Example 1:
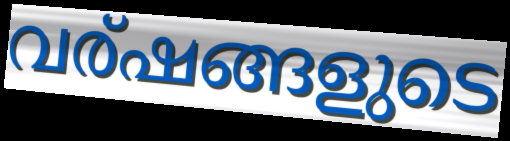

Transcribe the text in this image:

വര്ഷങ്ങളുടെ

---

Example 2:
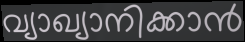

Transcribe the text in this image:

വ്യാഖ്യാനിക്കാൻ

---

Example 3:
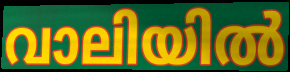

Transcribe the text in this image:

വാലിയിൽ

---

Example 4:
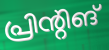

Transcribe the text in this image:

പ്രിന്റിങ്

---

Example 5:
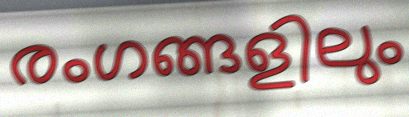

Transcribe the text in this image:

രംഗങ്ങളിലും